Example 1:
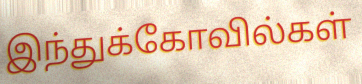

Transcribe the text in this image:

இந்துக்கோவில்கள்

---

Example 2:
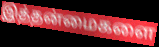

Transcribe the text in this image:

இத்தன்மைகளை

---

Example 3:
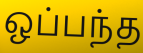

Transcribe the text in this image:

ஒப்பந்த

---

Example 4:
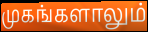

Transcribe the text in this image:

முகங்களாலும்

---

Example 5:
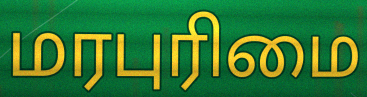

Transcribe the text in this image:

மரபுரிமை